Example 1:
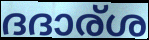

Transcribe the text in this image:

ദദാര്ശ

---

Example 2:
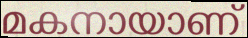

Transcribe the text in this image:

മകനായാണ്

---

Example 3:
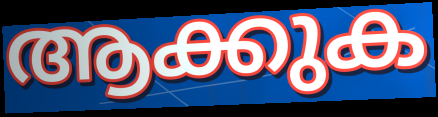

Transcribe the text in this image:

ആക്കുക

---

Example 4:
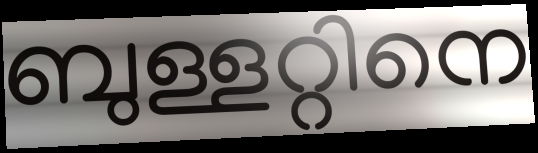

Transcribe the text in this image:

ബുള്ളറ്റിനെ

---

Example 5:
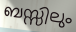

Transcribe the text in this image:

ബസ്സിലും